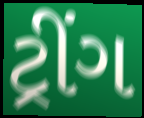
ટ્રીંગ